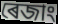
ৰেজাং